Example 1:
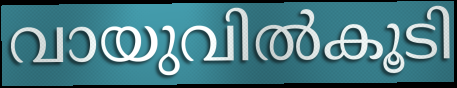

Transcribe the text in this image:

വായുവിൽകൂടി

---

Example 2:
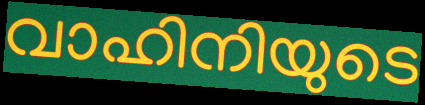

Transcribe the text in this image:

വാഹിനിയുടെ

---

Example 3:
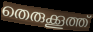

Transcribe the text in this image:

തെരുക്കൂത്ത്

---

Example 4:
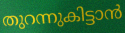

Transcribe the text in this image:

തുറന്നുകിട്ടാൻ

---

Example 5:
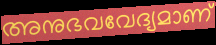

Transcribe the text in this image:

അനുഭവവേദ്യമാണ്